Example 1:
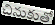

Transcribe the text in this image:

చినుకుతో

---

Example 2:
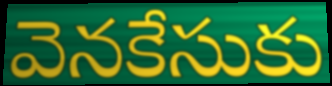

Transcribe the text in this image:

వెనకేసుకు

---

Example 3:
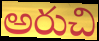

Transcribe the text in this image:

అరుచి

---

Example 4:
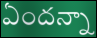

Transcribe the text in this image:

ఏందన్నా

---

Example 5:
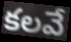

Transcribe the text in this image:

కలవే